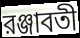
রঞ্জাবতী